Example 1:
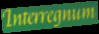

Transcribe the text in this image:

Interregnum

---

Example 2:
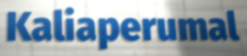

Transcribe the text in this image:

Kaliaperumal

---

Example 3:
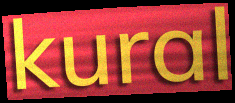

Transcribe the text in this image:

kural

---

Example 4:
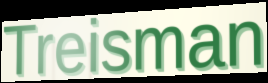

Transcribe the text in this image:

Treisman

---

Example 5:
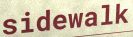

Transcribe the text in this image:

sidewalk